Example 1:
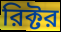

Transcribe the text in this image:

রিক্টর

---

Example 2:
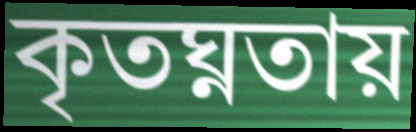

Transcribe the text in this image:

কৃতঘ্নতায়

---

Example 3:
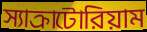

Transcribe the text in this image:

স্যাক্রাটোরিয়াম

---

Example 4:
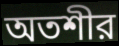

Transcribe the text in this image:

অতশীর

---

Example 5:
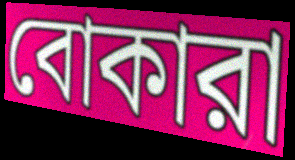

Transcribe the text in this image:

বোকারা